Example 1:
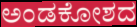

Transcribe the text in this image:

ಅಂಡಕೋಶದ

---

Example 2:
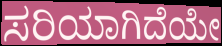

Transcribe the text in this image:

ಸರಿಯಾಗಿದೆಯೇ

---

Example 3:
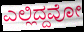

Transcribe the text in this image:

ಎಲ್ಲಿದ್ದವೋ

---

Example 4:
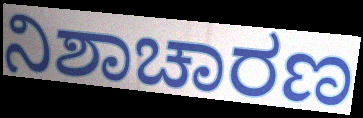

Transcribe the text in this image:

ನಿಶಾಚಾರಣ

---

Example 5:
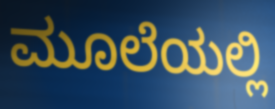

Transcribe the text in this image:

ಮೂಲೆಯಲ್ಲಿ